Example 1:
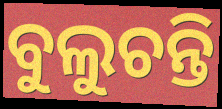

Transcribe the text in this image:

ବୁଲୁଚନ୍ତି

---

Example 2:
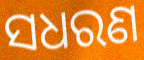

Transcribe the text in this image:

ସଧରଣ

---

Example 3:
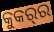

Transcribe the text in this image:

କୁକର୍‌ର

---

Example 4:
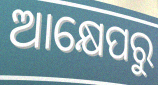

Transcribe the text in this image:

ଆକ୍ଷେପରୁ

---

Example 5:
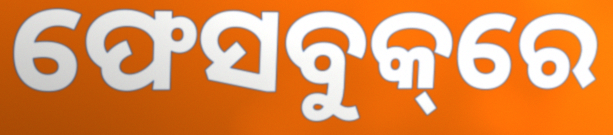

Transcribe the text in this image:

ଫେସବୁକ୍‌ରେ